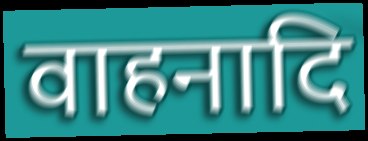
वाहनादि